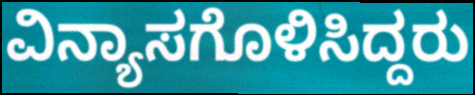
ವಿನ್ಯಾಸಗೊಳಿಸಿದ್ದರು